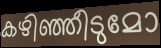
കഴിഞ്ഞീടുമോ